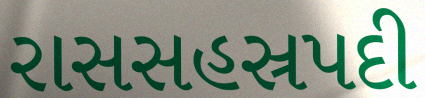
રાસસહસ્રપદી